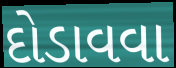
દોડાવવા